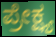
ಪ್ರೇಕ್ಷ್ಯ